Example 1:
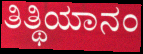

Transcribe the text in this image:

ತಿತ್ಥಿಯಾನಂ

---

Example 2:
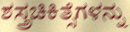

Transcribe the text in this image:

ಶಸ್ತ್ರಚಿಕಿತ್ಸೆಗಳನ್ನು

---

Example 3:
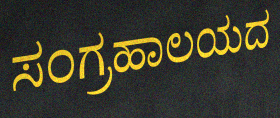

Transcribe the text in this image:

ಸಂಗ್ರಹಾಲಯದ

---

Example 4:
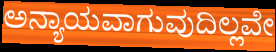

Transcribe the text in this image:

ಅನ್ಯಾಯವಾಗುವುದಿಲ್ಲವೇ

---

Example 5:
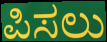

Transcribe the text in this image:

ಪಿಸಲು